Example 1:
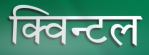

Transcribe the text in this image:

क्विन्टल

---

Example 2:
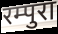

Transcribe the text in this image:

रम्पुरा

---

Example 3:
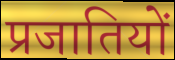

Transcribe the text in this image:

प्रजातियों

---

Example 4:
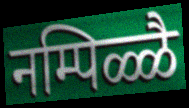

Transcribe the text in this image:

नम्पिळ्ळै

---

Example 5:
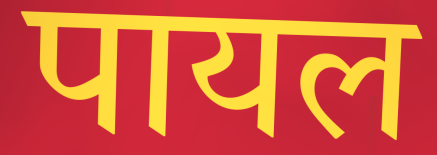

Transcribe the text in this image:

पायल